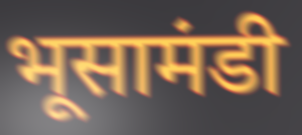
भूसामंडी